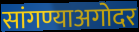
सांगण्याअगोदर